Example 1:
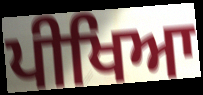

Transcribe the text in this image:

ਪੀਖਿਆ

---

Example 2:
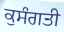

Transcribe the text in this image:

ਕੁਸੰਗਤੀ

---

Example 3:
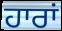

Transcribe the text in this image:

ਹਾਰਾਂ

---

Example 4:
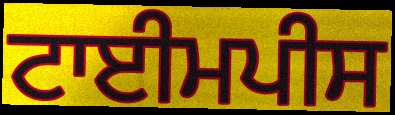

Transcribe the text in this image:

ਟਾਈਮਪੀਸ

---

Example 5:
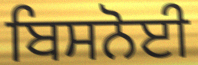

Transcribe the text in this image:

ਬਿਸਨੋਈ